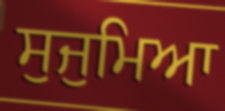
ਸੁਜੁਮਿਆ